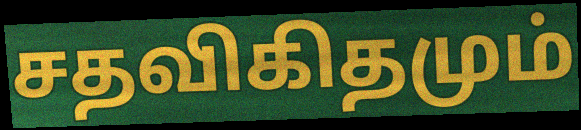
சதவிகிதமும்